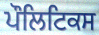
ਪੌਲਿਟਿਕਸ